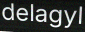
delagyl